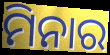
ମିନାର